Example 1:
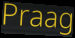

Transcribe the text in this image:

Praag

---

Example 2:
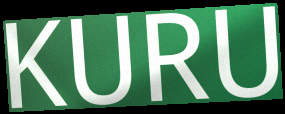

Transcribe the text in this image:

KURU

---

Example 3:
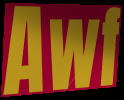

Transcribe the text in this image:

Awf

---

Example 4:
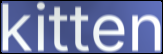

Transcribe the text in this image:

kitten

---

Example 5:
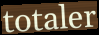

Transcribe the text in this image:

totaler